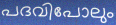
പദവിപോലും